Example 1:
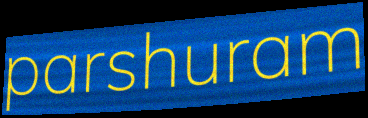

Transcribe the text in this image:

parshuram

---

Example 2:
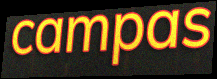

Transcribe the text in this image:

campas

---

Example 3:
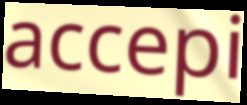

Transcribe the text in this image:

accepi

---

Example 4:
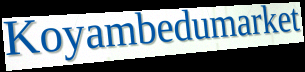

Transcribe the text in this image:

Koyambedumarket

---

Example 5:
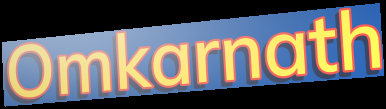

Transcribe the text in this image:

Omkarnath